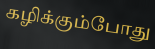
கழிக்கும்போது